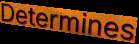
Determines